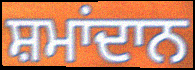
ਸ਼ਮਾਂਦਾਨ